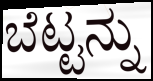
ಬೆಟ್ಟನ್ನು